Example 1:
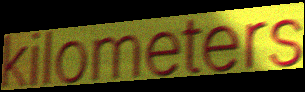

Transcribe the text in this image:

kilometers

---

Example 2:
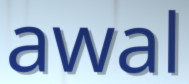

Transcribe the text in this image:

awal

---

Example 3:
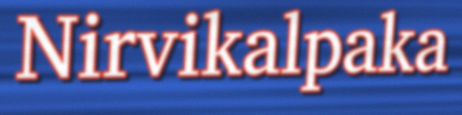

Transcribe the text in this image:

Nirvikalpaka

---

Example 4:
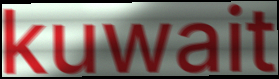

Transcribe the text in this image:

kuwait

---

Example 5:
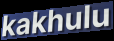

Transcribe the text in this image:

kakhulu